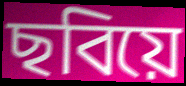
ছবিয়ে